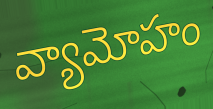
వ్యామోహం